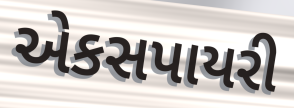
એકસપાયરી